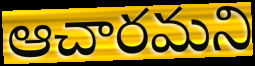
ఆచారమని